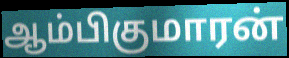
ஆம்பிகுமாரன்